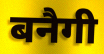
बनैगी